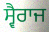
ਸ੍ਵੈਰਾਜ